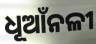
ଧୂଆଁନଳୀ